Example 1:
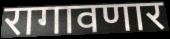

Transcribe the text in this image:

रागावणार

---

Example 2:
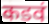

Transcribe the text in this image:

कडवं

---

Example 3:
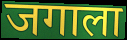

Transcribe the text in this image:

जगाला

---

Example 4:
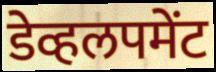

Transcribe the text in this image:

डेव्हलपमेंट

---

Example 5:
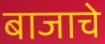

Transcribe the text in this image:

बाजाचे